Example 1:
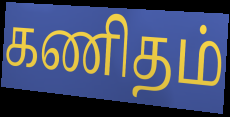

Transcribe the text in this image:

கணிதம்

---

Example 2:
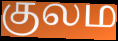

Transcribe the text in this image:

குலம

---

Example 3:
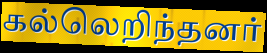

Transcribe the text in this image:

கல்லெறிந்தனர்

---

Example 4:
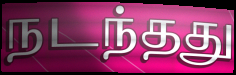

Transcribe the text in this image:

நடந்தது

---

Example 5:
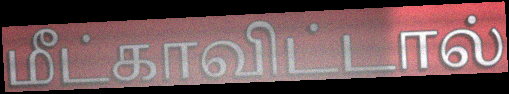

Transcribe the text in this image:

மீட்காவிட்டால்